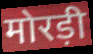
मोरड़ी